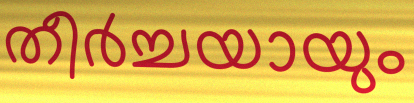
തീർച്ചയായും